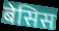
बेसिस